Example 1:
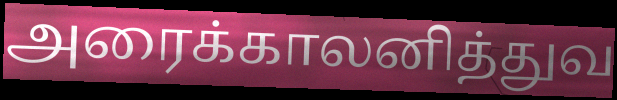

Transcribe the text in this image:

அரைக்காலனித்துவ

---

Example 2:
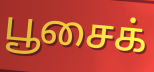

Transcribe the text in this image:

பூசைக்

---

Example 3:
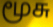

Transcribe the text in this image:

மூசு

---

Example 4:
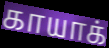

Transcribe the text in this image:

காயாக்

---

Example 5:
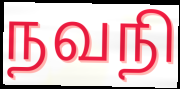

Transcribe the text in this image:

நவநி